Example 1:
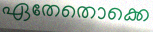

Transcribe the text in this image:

ഏതേതൊക്കെ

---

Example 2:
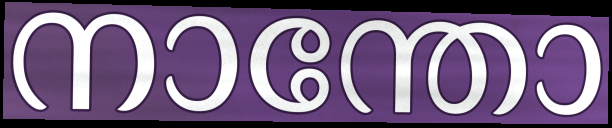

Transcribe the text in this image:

നാന്തോ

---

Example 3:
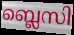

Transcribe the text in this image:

ബ്ലെസി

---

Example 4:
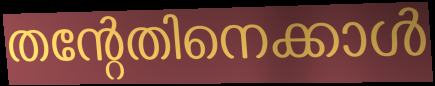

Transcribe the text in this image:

തന്റേതിനെക്കാൾ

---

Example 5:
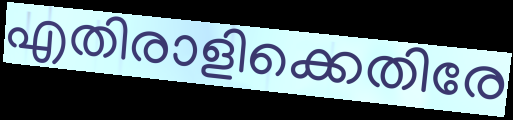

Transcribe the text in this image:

എതിരാളിക്കെതിരേ